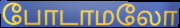
போடாமலோ